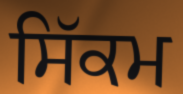
ਸਿੱਕਮ